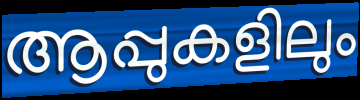
ആപ്പുകളിലും